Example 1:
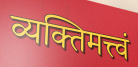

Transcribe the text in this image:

व्यक्तिमत्त्वं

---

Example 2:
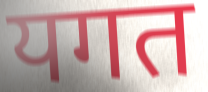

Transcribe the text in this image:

यगत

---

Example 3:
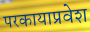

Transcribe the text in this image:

परकायाप्रवेश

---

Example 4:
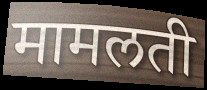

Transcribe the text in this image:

मामलती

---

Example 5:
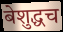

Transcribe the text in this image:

बेशुद्धच